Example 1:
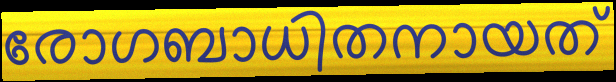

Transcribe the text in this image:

രോഗബാധിതനായത്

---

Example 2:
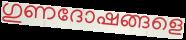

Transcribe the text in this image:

ഗുണദോഷങ്ങളെ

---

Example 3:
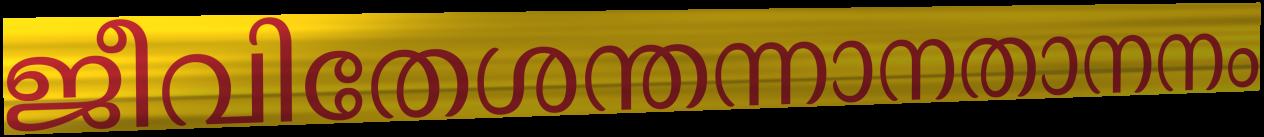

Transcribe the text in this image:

ജീവിതേശന്തന്നാനതാനനം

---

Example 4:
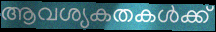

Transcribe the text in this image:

ആവശ്യകതകൾക്ക്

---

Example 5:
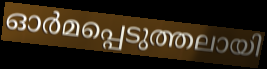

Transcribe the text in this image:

ഓർമപ്പെടുത്തലായി